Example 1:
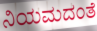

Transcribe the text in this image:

ನಿಯಮದಂತೆ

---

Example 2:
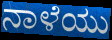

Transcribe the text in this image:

ನಾಳೆಯು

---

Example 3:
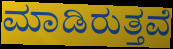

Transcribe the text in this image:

ಮಾಡಿರುತ್ತವೆ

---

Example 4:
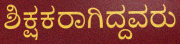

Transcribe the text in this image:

ಶಿಕ್ಷಕರಾಗಿದ್ದವರು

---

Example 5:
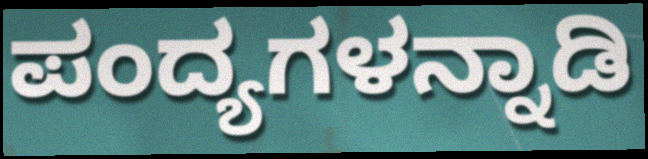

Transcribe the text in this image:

ಪಂದ್ಯಗಳನ್ನಾಡಿ